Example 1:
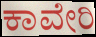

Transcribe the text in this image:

ಕಾವೇರಿ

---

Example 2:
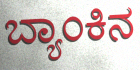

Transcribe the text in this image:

ಬ್ಯಾಂಕಿನ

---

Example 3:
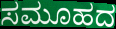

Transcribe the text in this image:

ಸಮೂಹದ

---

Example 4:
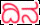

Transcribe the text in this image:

ದಿನ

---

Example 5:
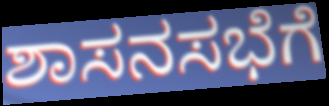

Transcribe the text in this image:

ಶಾಸನಸಭೆಗೆ